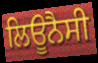
ਲਿਊਨੈਸੀ